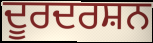
ਦੂਰਦਰਸ਼ਨ